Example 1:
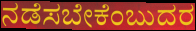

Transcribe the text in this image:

ನಡೆಸಬೇಕೆಂಬುದರ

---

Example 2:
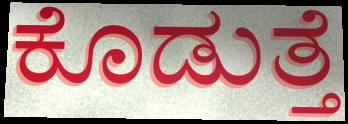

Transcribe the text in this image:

ಕೊಡುತ್ತೆ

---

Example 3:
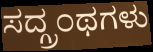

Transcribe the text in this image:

ಸದ್ಗ್ರಂಥಗಳು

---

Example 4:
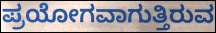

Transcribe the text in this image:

ಪ್ರಯೋಗವಾಗುತ್ತಿರುವ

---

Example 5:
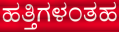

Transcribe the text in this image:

ಹತ್ತಿಗಳಂತಹ